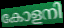
കോളനി